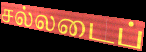
சல்லடைப்